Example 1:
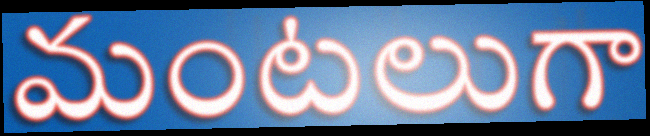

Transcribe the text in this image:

మంటలుగా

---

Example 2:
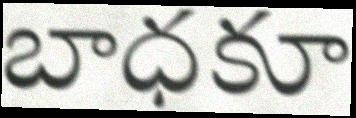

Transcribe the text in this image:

బాధకూ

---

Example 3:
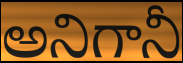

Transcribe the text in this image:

అనిగానీ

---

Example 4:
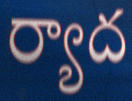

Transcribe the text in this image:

ర్యాద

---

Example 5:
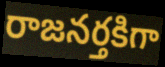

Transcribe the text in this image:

రాజనర్తకిగా